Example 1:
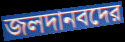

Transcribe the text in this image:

জলদানবদের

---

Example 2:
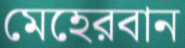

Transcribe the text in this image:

মেহেরবান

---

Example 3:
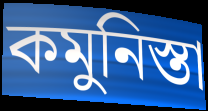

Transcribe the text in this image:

কমুনিস্তা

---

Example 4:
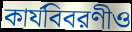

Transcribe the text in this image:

কার্যবিবরণীও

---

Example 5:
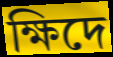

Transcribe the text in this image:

ক্ষিদে